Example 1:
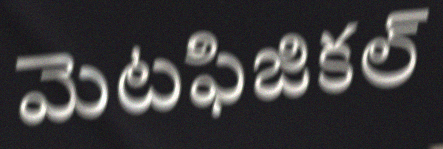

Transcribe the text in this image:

మెటఫిజికల్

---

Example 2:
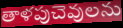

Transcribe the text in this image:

తాళపుచెవులను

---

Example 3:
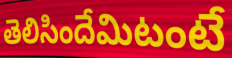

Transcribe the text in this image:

తెలిసిందేమిటంటే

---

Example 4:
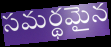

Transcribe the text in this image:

సమర్థమైన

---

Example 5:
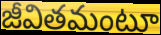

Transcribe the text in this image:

జీవితమంటూ